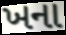
ખના